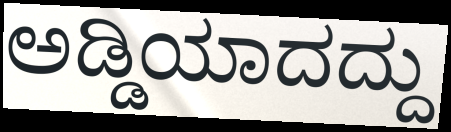
ಅಡ್ಡಿಯಾದದ್ದು